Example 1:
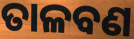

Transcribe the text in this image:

ତାଳବଣ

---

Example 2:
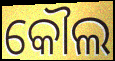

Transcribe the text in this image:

କୌଲ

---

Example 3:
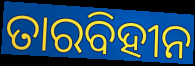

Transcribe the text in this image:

ତାରବିହୀନ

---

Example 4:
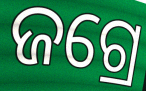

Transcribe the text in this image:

ଜଗ୍ରେ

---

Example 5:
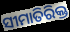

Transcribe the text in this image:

ସୀମାତିରିକ୍ତ